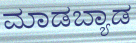
ಮಾಡಬ್ಯಾಡ